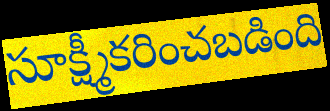
సూక్ష్మీకరించబడింది